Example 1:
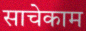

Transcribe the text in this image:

साचेकाम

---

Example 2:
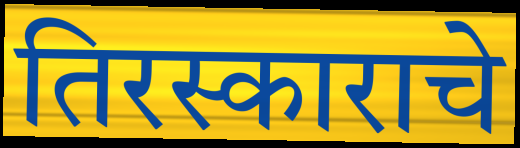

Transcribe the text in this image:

तिरस्काराचे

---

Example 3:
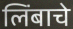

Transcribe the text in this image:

लिंबाचे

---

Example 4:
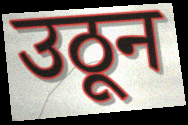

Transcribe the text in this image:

उठून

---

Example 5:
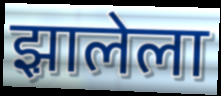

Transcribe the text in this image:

झ़ालेला